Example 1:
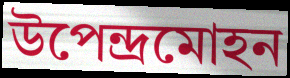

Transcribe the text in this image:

উপেন্দ্রমোহন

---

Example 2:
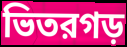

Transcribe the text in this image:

ভিতরগড়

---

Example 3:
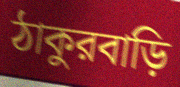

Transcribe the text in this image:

ঠাকুরবাড়ি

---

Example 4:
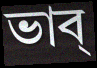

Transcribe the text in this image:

ভাব্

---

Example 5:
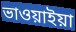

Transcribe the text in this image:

ভাওয়াইয়া